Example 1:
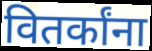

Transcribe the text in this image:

वितर्कांना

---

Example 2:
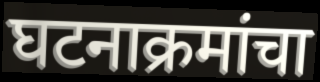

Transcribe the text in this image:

घटनाक्रमांचा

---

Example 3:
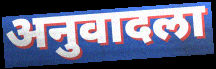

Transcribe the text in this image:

अनुवादला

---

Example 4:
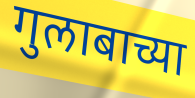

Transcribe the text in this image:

गुलाबाच्या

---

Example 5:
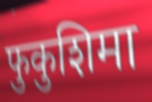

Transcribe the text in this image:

फुकुशिमा